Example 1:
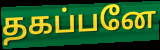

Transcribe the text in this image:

தகப்பனே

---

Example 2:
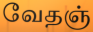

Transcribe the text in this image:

வேதஞ்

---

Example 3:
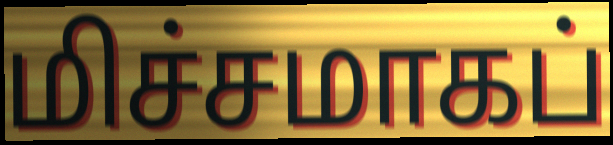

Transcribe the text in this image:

மிச்சமாகப்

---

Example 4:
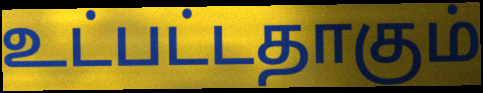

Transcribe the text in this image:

உட்பட்டதாகும்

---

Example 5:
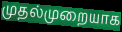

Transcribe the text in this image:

முதல்முறையாக